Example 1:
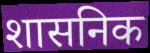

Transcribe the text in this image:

शासनिक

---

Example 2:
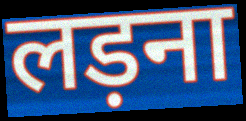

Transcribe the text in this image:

लड़ना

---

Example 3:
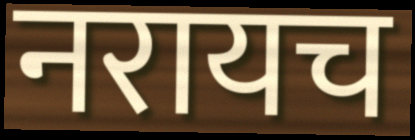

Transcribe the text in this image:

नरायच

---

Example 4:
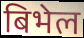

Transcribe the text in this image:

बिभेल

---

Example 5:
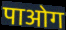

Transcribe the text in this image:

पाओग